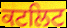
ਕਟਲਿਟ